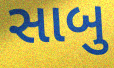
સાબુ